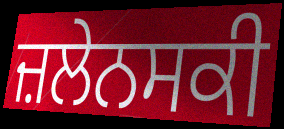
ਜ਼ਲੇਨਸਕੀ